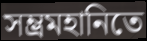
সম্ভ্রমহানিতে